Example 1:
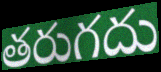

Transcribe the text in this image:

తరుగదు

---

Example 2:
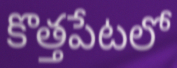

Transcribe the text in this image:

కొత్తపేటలో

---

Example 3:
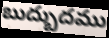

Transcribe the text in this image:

బుద్బుదము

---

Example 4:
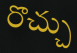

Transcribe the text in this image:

రొచ్చు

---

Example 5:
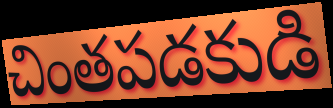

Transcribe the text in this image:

చింతపడకుడి